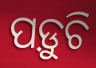
ପଡ଼ୁଚି